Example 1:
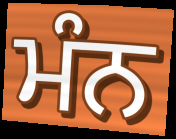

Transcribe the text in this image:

ਮੰਨ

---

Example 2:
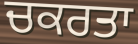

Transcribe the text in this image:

ਚਕਰਤਾ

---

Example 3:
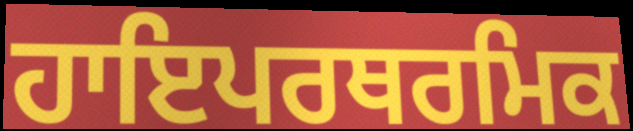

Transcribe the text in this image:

ਹਾਇਪਰਥਰਮਿਕ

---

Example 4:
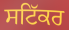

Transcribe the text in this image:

ਸਟਿੱਕਰ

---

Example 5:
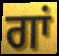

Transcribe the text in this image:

ਗਾਂ